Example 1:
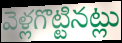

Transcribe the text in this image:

వెళ్లగొట్టినట్లు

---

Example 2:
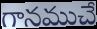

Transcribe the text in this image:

గానముచే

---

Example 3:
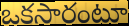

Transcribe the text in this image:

ఒకసారంటూ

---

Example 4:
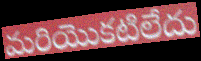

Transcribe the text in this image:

మరియొకటిలేదు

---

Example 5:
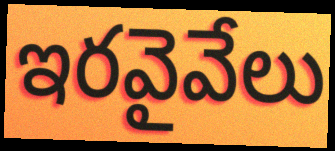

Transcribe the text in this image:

ఇరవైవేలు